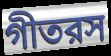
গীতরস